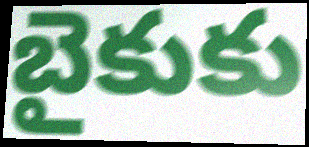
బైకుకు